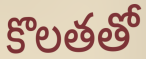
కొలతతో